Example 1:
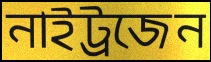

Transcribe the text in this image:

নাইট্রজেন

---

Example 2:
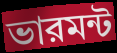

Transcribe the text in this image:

ভারমন্ট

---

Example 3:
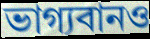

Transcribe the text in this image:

ভাগ্যবানও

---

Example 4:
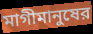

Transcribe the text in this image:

মাগীমানুষের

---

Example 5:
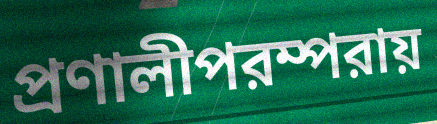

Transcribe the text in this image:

প্রণালীপরম্পরায়